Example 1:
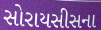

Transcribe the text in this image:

સોરાયસીસના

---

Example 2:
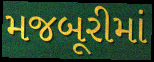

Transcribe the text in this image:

મજબૂરીમાં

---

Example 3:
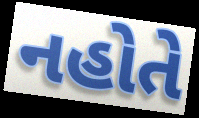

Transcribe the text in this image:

નહોતે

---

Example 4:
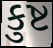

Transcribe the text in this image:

કુષ્ટ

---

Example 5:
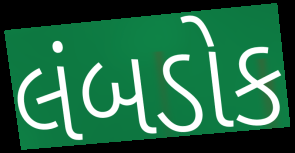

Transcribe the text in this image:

લંબડોક